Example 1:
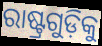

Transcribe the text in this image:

ରାଷ୍ଟ୍ରଗୁଡ଼ିକୁ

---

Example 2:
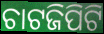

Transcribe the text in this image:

ଚାଟଜିପିଟି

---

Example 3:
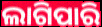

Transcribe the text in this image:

ଲାଗିପାରି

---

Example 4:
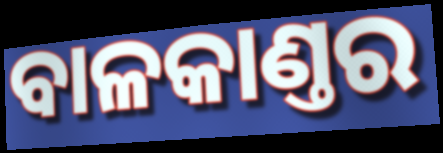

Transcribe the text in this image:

ବାଳକାଣ୍ତର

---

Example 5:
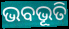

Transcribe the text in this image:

ଭବଭୂତି